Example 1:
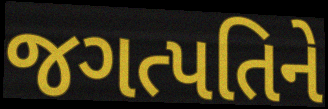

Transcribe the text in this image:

જગત્પતિને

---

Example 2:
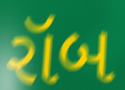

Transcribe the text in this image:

રૉબ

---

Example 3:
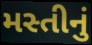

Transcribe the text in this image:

મસ્તીનું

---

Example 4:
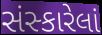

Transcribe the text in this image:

સંસ્કારેલાં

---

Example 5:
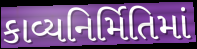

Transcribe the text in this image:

કાવ્યનિર્મિતિમાં